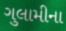
ગુલામીના